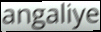
angaliye